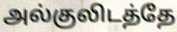
அல்குலிடத்தே